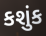
કશુંક